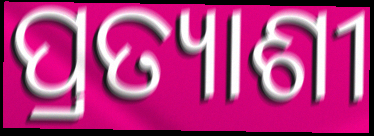
ପ୍ରତ୍ୟାଶୀ